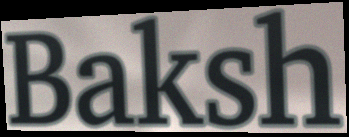
Baksh